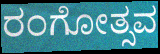
ರಂಗೋತ್ಸವ